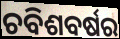
ଚବିଶବର୍ଷର